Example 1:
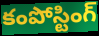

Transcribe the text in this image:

కంపోస్టింగ్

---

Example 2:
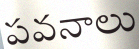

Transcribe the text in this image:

పవనాలు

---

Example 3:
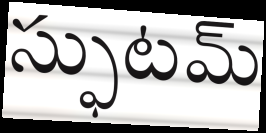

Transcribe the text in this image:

స్ఫుటమ్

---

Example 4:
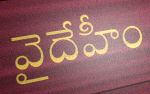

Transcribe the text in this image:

వైదేహీం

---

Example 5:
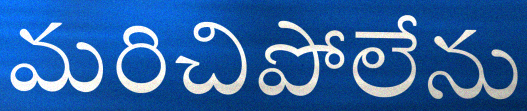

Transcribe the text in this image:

మరిచిపోలేను